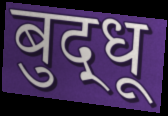
बुद्धू